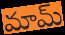
మామ్